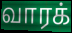
வாரக்